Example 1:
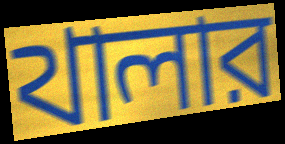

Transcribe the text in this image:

থালার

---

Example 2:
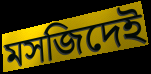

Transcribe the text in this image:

মসজিদেই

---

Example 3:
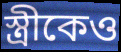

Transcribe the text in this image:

স্ত্রীকেও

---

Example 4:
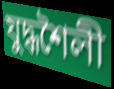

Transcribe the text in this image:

যুদ্ধশৈলী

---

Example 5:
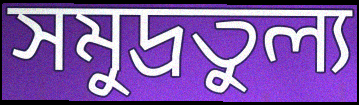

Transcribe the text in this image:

সমুদ্রতুল্য